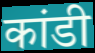
कांडी